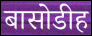
बासोडीह